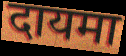
दायमा